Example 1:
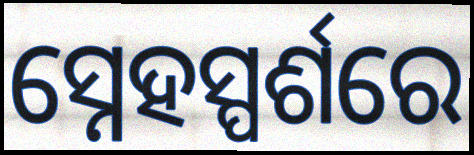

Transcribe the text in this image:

ସ୍ନେହସ୍ପର୍ଶରେ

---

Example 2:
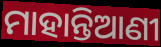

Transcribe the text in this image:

ମାହାନ୍ତିଆଣୀ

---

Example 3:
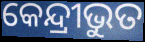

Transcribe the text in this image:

କେନ୍ଦ୍ରୀଭୁତ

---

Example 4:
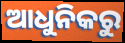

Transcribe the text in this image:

ଆଧୁନିକରୁ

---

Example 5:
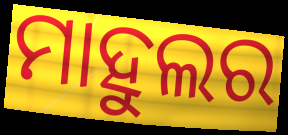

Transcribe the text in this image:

ମାହୁଲର